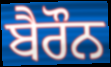
ਬੈਰੌਨ